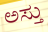
ಅಸ್ತು